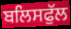
ਬਲਿਸਫੁੱਲ